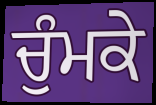
ਚੁੰਮਕੇ